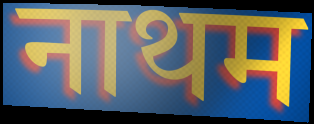
नाथम